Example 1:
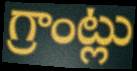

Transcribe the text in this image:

గ్రాంట్లు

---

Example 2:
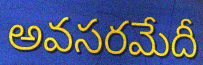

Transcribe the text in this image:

అవసరమేదీ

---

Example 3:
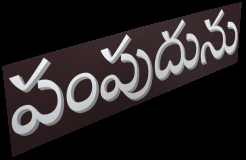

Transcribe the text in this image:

పంపుదును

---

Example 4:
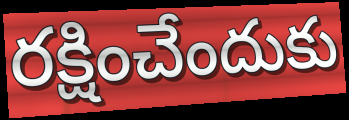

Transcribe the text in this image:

రక్షించేందుకు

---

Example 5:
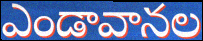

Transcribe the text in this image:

ఎండావానల